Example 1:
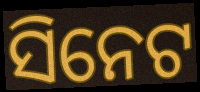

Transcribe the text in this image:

ସିନେଟ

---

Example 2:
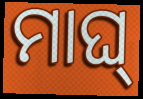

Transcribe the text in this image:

ମାଘ୍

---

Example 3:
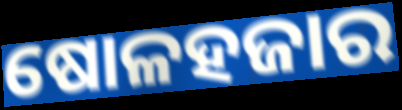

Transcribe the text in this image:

ଷୋଳହଜାର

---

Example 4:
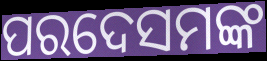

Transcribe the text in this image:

ପରଦେସମଙ୍କ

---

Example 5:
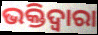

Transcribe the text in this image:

ଭକ୍ତିଦ୍ଵାରା